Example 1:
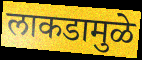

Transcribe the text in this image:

लाकडामुळे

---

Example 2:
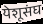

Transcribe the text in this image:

येशूसंघ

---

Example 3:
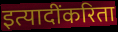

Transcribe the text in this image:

इत्यादींकरिता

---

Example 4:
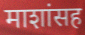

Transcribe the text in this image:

माशांसह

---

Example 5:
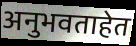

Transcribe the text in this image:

अनुभवताहेत